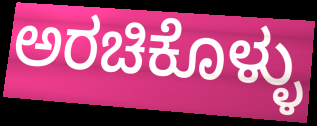
ಅರಚಿಕೊಳ್ಳು